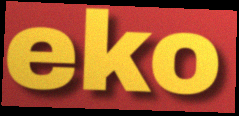
eko